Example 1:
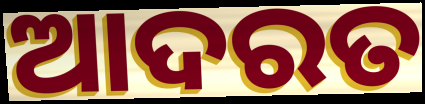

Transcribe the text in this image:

ଆଦରତ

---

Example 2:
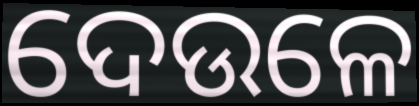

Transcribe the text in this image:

ଦେଉଳେ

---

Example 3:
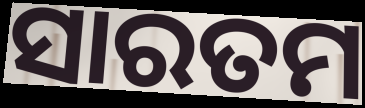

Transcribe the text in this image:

ସାରତମ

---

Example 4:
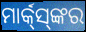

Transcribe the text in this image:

ମାର୍କ୍‍ସ୍‍ଙ୍କର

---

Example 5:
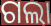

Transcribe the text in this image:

ଗଲା